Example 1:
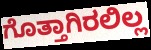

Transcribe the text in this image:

ಗೊತ್ತಾಗಿರಲಿಲ್ಲ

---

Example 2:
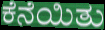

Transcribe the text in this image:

ಕೆನೆಯಿತು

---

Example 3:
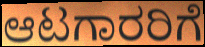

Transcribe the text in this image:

ಆಟಗಾರರಿಗೆ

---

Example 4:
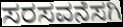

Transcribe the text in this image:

ಸರಸವನೆಸಗಿ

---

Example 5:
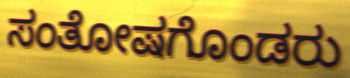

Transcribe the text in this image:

ಸಂತೋಷಗೊಂಡರು